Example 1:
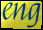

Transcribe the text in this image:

eng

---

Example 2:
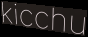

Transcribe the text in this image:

kicchu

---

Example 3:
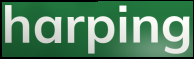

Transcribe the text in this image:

harping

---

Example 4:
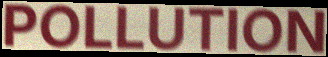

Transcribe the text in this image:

POLLUTION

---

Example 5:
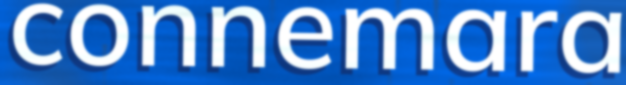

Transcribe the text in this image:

connemara